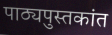
पाठ्यपुस्तकांत